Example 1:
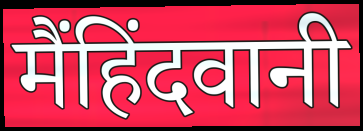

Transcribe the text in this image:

मैंहिंदवानी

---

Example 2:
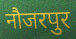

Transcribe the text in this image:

नौजरपुर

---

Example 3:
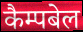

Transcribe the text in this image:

कैम्पबेल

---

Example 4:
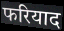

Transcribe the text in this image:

फरियाद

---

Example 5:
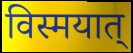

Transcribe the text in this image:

विस्मयात्